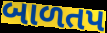
બાળતપ